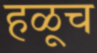
हळूच